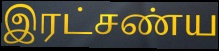
இரட்சண்ய